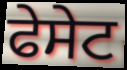
ਫੇਸੇਟ